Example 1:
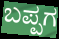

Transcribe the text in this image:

ಬಪ್ಪಗ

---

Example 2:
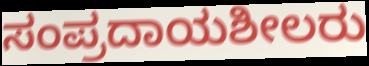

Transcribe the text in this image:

ಸಂಪ್ರದಾಯಶೀಲರು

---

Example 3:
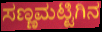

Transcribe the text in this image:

ಸಣ್ಣಮಟ್ಟಿಗಿನ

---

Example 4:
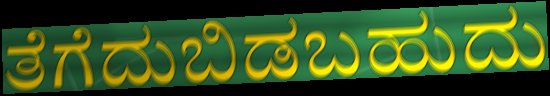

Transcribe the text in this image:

ತೆಗೆದುಬಿಡಬಹುದು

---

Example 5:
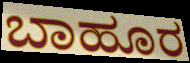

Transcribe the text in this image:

ಬಾಹೂರ